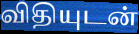
விதியுடன்